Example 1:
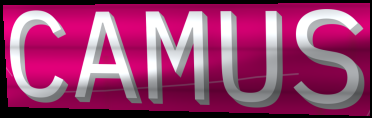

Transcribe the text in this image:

CAMUS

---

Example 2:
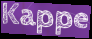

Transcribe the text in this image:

Kappe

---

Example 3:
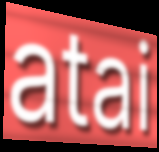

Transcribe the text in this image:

atai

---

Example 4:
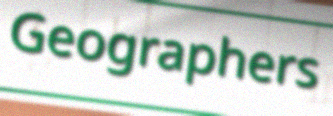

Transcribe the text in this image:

Geographers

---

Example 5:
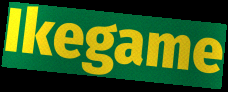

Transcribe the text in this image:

Ikegame